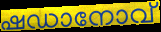
ഷഡാനോവ്